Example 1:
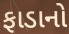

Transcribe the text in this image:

ફાડાનો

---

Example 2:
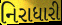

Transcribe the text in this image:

નિરાધારી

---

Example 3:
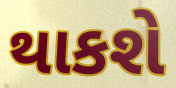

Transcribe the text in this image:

થાકશે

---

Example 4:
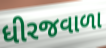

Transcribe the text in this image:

ધીરજવાળા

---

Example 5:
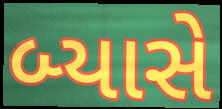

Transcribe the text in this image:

બ્યાસે